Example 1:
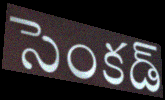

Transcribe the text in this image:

సెంకడ్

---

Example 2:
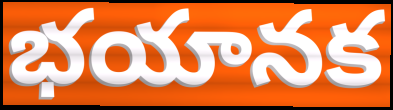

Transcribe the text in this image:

భయానక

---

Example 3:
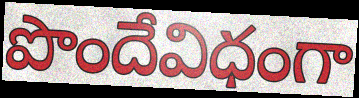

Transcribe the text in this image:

పొందేవిధంగా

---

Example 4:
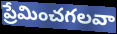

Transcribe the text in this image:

ప్రేమించగలవా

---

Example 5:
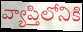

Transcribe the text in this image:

వ్యాప్తిలోనికి